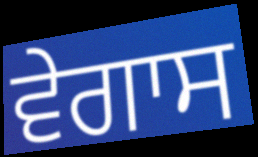
ਵੇਗਾਸ